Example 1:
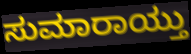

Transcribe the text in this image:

ಸುಮಾರಾಯ್ತು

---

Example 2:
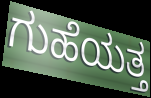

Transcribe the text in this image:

ಗುಹೆಯತ್ತ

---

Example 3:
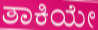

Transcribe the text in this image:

ತಾಕಿಯೇ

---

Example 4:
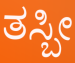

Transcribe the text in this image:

ತಸ್ಬೀ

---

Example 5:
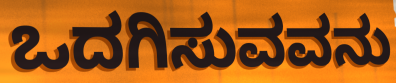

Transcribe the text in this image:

ಒದಗಿಸುವವನು